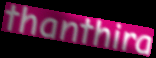
thanthira